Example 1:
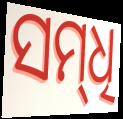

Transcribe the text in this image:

ସମ୍‌ଧି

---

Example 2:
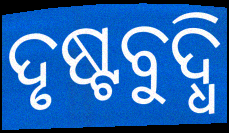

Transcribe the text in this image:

ଦୃଷ୍ଟବୁଦ୍ଧି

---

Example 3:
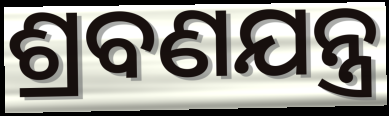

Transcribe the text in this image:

ଶ୍ରବଣଯନ୍ତ୍ର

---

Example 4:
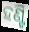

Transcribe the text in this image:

ହଣ୍ଟି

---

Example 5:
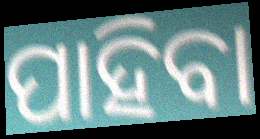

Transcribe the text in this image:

ପାହିବା